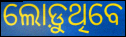
ଲୋଡ଼ୁଥିବେ